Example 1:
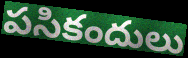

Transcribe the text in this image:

పసికందులు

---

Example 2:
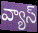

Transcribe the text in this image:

వ్యాస్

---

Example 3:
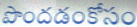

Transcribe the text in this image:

పొందడంకోసం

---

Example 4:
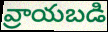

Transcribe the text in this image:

వ్రాయబడి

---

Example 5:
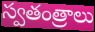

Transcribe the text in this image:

స్వతంత్రాలు